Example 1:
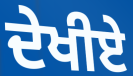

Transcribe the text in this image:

ਦੇਖੀਏ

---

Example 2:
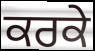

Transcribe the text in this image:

ਕਰਕੇ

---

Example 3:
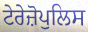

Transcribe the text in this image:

ਟੇਰੇਜ਼ੋਪੁਲਿਸ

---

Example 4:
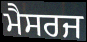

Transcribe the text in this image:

ਮੈਸਰਜ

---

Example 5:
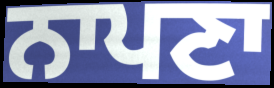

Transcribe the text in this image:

ਨਾਪਣਾ